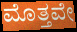
ಮೊತ್ತವೇ